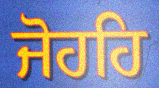
ਜੋਹਹਿ